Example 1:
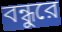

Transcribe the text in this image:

বন্ধুরে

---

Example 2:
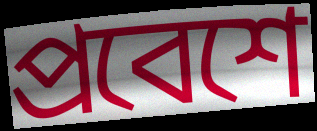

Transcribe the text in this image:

প্রবেশে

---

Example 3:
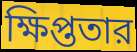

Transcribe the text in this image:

ক্ষিপ্ততার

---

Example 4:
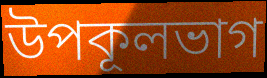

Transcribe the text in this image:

উপকূলভাগ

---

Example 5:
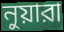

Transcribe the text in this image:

নুয়ারা